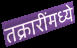
तक्रारींमध्ये